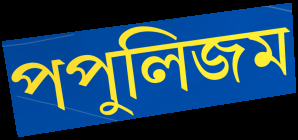
পপুলিজম